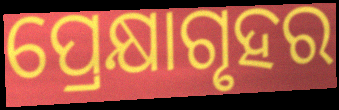
ପ୍ରେକ୍ଷାଗୃହର